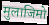
मुलाजिमो